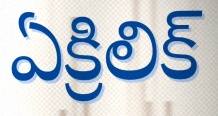
ఏక్రిలిక్